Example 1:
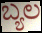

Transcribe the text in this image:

ಬ್ಯಲ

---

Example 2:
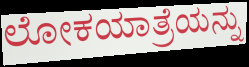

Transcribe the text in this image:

ಲೋಕಯಾತ್ರೆಯನ್ನು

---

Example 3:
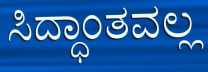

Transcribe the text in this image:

ಸಿದ್ಧಾಂತವಲ್ಲ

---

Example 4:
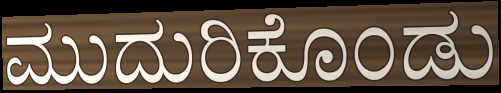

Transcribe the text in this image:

ಮುದುರಿಕೊಂಡು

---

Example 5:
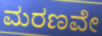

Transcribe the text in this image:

ಮರಣವೇ